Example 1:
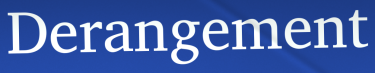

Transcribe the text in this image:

Derangement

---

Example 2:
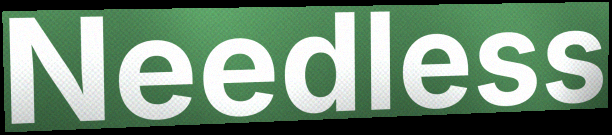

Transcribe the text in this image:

Needless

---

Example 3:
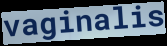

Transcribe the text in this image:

vaginalis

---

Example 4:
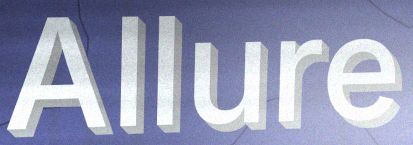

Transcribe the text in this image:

Allure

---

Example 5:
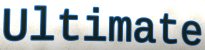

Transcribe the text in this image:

Ultimate